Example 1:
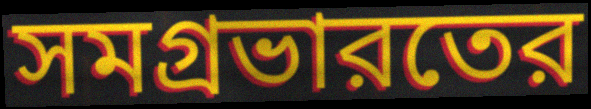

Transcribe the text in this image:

সমগ্রভারতের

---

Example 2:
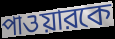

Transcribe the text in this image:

পাওয়ারকে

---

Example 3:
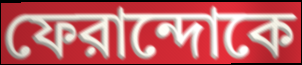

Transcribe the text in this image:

ফেরান্দোকে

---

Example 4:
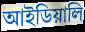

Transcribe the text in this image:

আইডিয়ালি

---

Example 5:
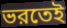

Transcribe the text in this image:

ভরতেই